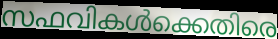
സഫവികൾക്കെതിരെ